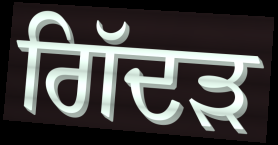
ਗਿੱਦਡ਼